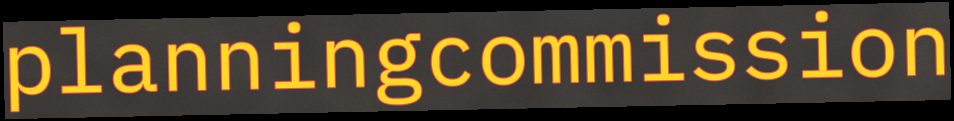
planningcommission